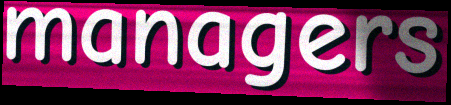
managers